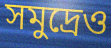
সমুদ্রেও